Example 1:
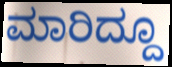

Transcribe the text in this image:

ಮಾರಿದ್ದೂ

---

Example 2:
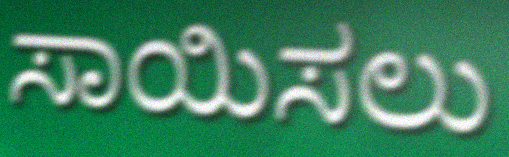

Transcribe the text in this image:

ಸಾಯಿಸಲು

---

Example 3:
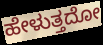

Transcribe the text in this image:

ಹೇಳುತ್ತದೋ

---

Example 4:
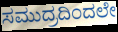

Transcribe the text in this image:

ಸಮುದ್ರದಿಂದಲೇ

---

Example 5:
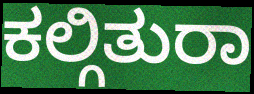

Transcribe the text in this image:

ಕಲ್ಗಿತುರಾ